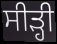
ਸੀੜ੍ਹੀ